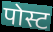
पोस्‍ट